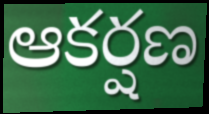
ఆకర్షణ